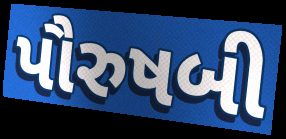
પૌરુષબી